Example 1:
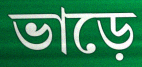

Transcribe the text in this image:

ভাড়ে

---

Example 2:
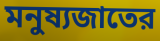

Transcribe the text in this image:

মনুষ্যজাতের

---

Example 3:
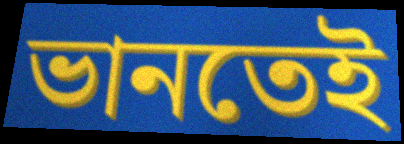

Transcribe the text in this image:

ভানতেই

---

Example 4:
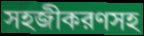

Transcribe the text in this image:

সহজীকরণসহ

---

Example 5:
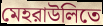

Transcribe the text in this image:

মেহরাউলিতে